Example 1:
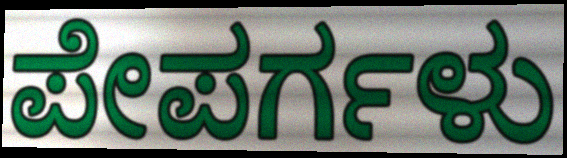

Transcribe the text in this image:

ಪೇಪರ್ಗಳು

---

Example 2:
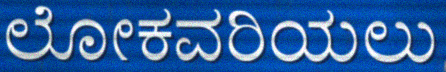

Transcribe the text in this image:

ಲೋಕವರಿಯಲು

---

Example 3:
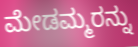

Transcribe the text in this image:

ಮೇಡಮ್ಮರನ್ನು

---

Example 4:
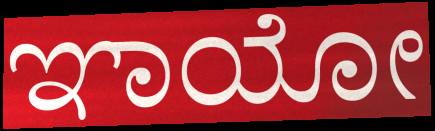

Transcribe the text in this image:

ಞಾಯೋ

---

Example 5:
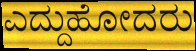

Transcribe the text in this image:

ಎದ್ದುಹೋದರು